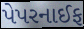
પેપરનાઈફ